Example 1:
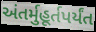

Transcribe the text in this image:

અંતર્મુહૂર્તપર્યંત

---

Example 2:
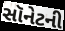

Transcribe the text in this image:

સૉનેટની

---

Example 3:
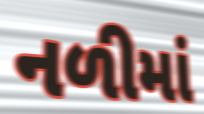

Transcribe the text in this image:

નળીમાં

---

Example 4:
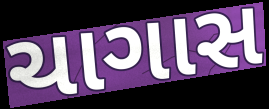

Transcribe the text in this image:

ચાગાસ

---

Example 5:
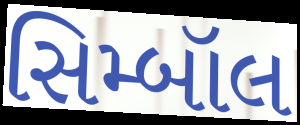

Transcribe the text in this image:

સિમ્બૉલ